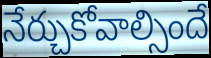
నేర్చుకోవాల్సిందే